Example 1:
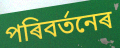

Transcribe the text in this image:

পৰিবৰ্তনেৰ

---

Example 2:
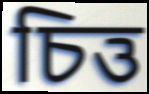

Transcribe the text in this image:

চিত্ত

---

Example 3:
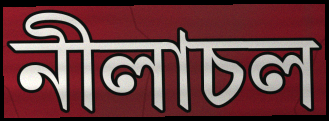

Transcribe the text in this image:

নীলাচল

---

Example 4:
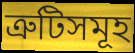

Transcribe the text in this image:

ত্ৰুটিসমূহ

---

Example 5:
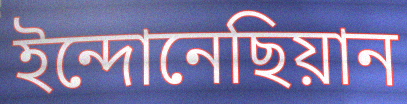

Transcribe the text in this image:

ইন্দোনেছিয়ান